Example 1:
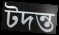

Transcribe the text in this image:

টদন্ত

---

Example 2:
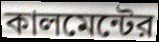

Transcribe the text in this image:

কালমেন্টের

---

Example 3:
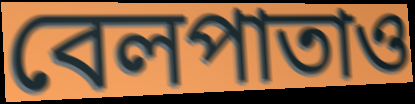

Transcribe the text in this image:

বেলপাতাও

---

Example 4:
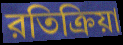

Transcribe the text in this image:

রতিক্রিয়া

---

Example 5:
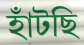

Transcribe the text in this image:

হাঁটছি